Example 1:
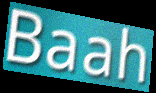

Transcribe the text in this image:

Baah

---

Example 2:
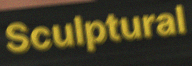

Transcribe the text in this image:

Sculptural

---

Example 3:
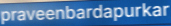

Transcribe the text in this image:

praveenbardapurkar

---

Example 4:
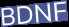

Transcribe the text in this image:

BDNF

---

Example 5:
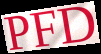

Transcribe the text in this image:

PFD